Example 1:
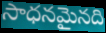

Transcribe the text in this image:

సాధనమైనది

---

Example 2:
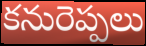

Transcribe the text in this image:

కనురెప్పలు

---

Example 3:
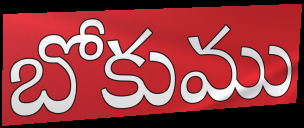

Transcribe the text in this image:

బోకుము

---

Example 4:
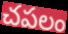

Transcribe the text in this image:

చపలం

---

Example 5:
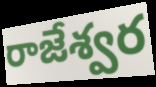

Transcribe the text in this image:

రాజేశ్వర